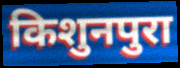
किशुनपुरा